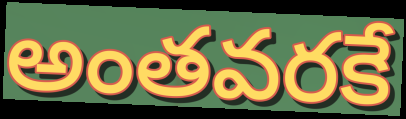
అంతవరకే